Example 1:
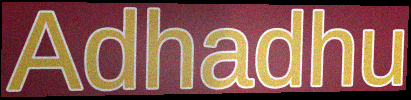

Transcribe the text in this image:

Adhadhu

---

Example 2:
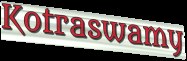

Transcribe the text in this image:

Kotraswamy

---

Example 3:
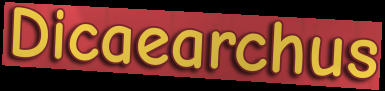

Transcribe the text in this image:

Dicaearchus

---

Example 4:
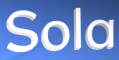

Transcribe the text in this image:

Sola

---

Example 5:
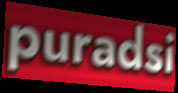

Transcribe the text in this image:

puradsi